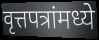
वृत्तपत्रांमध्ये